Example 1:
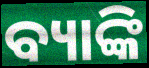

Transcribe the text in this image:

ବ୍ୟାଙ୍କି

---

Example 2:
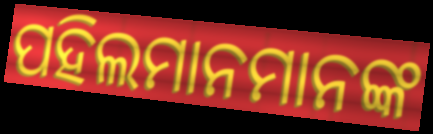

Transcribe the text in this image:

ପହିଲମାନମାନଙ୍କ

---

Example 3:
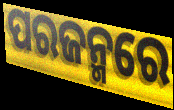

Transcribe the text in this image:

ପରଜନ୍ମରେ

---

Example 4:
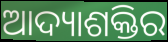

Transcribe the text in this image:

ଆଦ୍ୟାଶକ୍ତିର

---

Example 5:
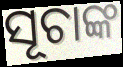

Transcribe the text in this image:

ସୂଚାଙ୍କ